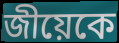
জীয়েকে